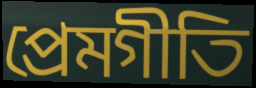
প্রেমগীতি